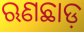
ଋଣଛାଡ଼